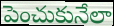
పెంచుకునేలా